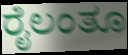
ರೈಲಂತೂ